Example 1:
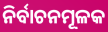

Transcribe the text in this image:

ନିର୍ବାଚନମୂଳକ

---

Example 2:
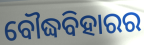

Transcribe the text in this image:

ବୌଦ୍ଧବିହାରର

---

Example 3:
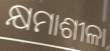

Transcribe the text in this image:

କ୍ଷମାଶୀଳା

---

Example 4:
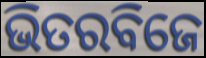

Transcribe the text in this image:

ଭିତରବିଜେ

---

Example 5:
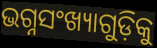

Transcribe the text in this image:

ଭଗ୍ନସଂଖ୍ୟାଗୁଡ଼ିକୁ